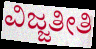
ವಿಜ್ಜತೀತಿ